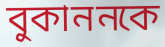
বুকাননকে